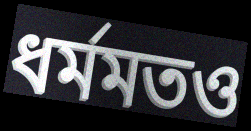
ধর্মমতও